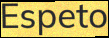
Espeto